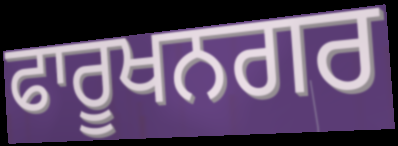
ਫਾਰੂਖਨਗਰ